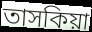
তাসকিয়া